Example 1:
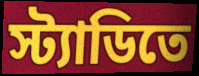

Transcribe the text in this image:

স্ট্যাডিতে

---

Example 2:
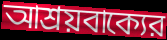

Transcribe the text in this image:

আশ্রয়বাক্যের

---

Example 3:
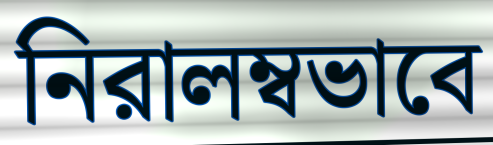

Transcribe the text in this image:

নিরালম্বভাবে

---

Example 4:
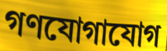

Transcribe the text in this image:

গণযোগাযোগ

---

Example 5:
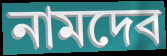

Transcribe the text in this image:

নামদেব